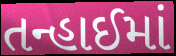
તન્હાઈમાં